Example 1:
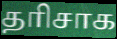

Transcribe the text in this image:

தரிசாக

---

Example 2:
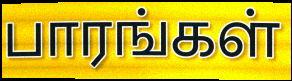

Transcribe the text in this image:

பாரங்கள்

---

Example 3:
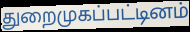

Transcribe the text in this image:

துறைமுகப்பட்டினம்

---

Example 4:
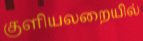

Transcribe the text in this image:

குளியலறையில்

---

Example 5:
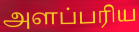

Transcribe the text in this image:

அளப்பரிய